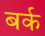
बर्क